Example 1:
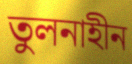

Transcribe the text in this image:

তুলনাহীন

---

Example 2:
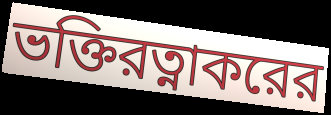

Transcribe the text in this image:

ভক্তিরত্নাকরের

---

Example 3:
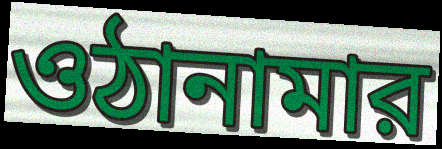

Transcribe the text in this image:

ওঠানামার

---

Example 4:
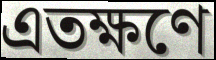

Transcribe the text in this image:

এতক্ষণে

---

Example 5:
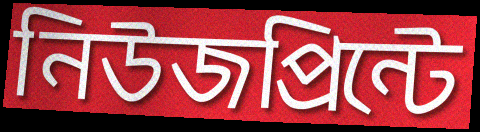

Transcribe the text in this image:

নিউজপ্রিন্টে